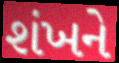
શંખને